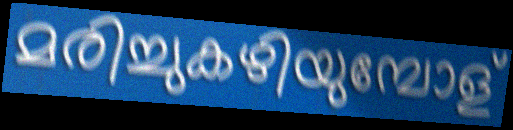
മരിച്ചുകഴിയുമ്പോള്